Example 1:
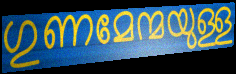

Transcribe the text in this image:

ഗുണമേന്മയുള്ള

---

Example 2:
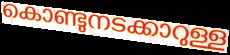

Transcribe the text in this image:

കൊണ്ടുനടക്കാറുള്ള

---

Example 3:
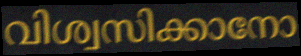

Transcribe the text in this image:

വിശ്വസിക്കാനോ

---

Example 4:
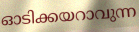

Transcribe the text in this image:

ഓടിക്കയറാവുന്ന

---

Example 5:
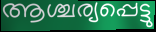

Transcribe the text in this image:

ആശ്ചര്യപ്പെട്ടു